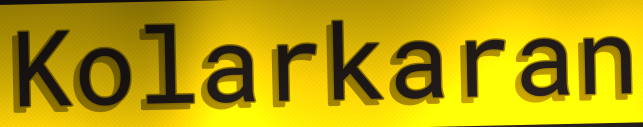
Kolarkaran